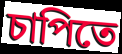
চাপিতে